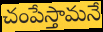
చంపేస్తామనే